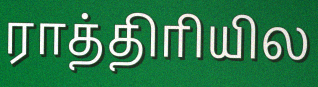
ராத்திரியில